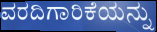
ವರದಿಗಾರಿಕೆಯನ್ನು